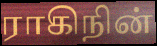
ராகிநின்